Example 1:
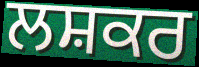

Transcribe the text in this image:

ਲਸ਼ਕਰ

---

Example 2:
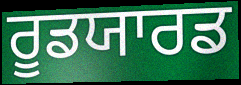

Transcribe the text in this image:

ਰੂਡਯਾਰਡ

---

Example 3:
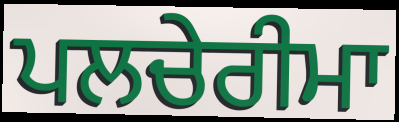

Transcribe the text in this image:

ਪਲਚੇਰੀਮਾ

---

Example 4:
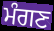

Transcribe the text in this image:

ਮੰਗਣ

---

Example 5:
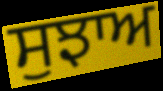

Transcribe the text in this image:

ਸੁਝਾਅ